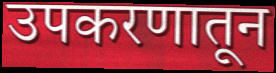
उपकरणातून